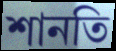
শানতি